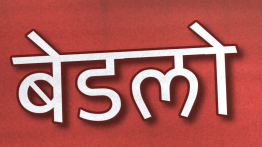
बेडलो